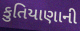
કુતિયાણાની